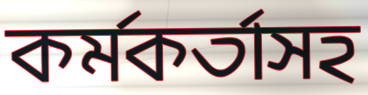
কর্মকর্তাসহ